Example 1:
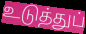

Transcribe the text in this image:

உடுத்துப்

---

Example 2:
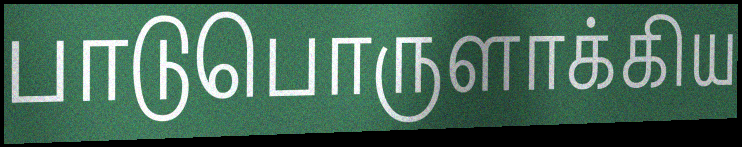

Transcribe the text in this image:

பாடுபொருளாக்கிய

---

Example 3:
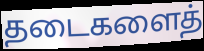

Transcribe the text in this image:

தடைகளைத்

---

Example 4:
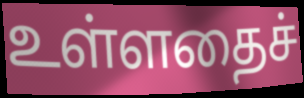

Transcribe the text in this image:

உள்ளதைச்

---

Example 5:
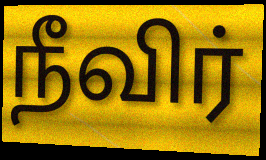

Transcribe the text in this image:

நீவிர்